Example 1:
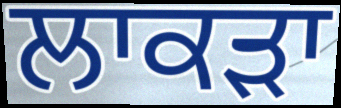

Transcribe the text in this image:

ਲਾਕੜਾ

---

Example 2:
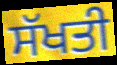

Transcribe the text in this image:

ਸੱਖਤੀ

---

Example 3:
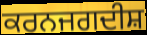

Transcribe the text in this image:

ਕਰਨਜਗਦੀਸ਼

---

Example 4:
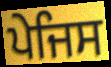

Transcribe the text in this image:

ਪੇਜਿਸ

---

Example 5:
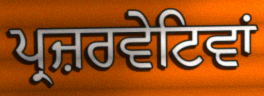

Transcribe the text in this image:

ਪ੍ਰਜ਼ਰਵੇਟਿਵਾਂ